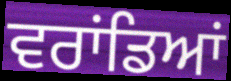
ਵਰਾਂਡਿਆਂ